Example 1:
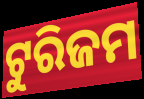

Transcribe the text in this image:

ଟୁରିଜମ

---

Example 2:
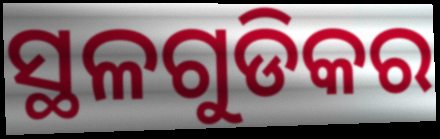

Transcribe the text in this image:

ସ୍ଥଳଗୁଡିକର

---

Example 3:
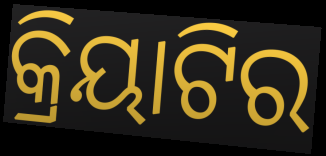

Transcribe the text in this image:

କ୍ରିୟାଟିର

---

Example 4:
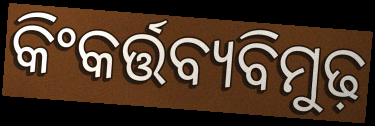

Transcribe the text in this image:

କିଂକର୍ତ୍ତବ୍ୟବିମୁଢ଼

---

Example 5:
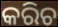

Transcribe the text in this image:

କରିଚ